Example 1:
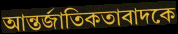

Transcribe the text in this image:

আন্তর্জাতিকতাবাদকে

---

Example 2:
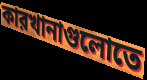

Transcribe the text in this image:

কারখানাগুলোতে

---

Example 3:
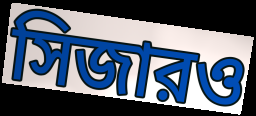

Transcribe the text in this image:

সিজারও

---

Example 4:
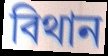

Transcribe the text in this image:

বিথান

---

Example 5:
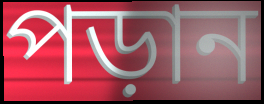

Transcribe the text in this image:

পড়ান